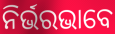
ନିର୍ଭରଭାବେ